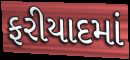
ફરીયાદમાં